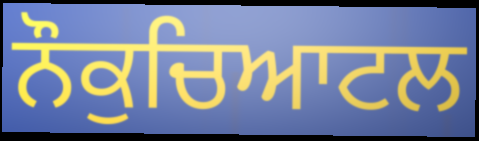
ਨੌਕੁਚਿਆਟਲ